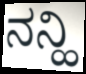
ನನ್ಹಿ